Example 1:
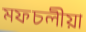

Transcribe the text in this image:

মফচলীয়া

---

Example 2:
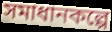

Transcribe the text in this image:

সমাধানকল্পে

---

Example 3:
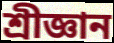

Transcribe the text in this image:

শ্ৰীজ্ঞান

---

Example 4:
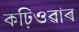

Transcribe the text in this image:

কঢ়িওৱাৰ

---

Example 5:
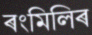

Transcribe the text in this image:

ৰংমিলিৰ